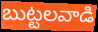
బుట్టలవాడి